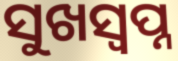
ସୁଖସ୍ୱପ୍ନ